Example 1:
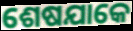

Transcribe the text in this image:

ଶେଷଯାକେ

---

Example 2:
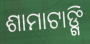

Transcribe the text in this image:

ଶାମାଟାଙ୍ଗି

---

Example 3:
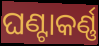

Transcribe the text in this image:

ଘଣ୍ଟାକର୍ଣ୍ଣ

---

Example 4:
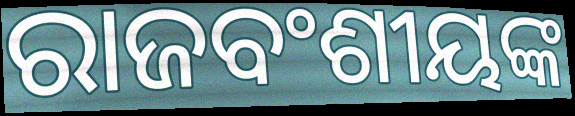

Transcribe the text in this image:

ରାଜବଂଶୀୟଙ୍କ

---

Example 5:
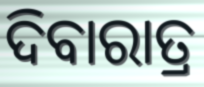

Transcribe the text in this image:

ଦିବାରାତ୍ର